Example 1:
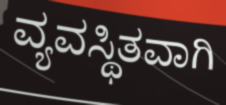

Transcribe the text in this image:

ವ್ಯವಸ್ಥಿತವಾಗಿ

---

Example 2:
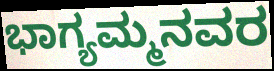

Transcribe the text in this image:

ಭಾಗ್ಯಮ್ಮನವರ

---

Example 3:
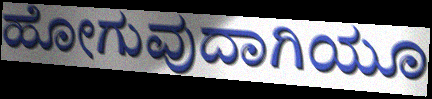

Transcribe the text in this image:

ಹೋಗುವುದಾಗಿಯೂ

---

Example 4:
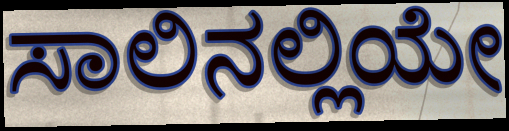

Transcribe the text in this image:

ಸಾಲಿನಲ್ಲಿಯೇ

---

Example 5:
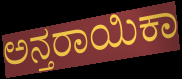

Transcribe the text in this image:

ಅನ್ತರಾಯಿಕಾ